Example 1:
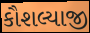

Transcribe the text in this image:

કૌશલ્યાજી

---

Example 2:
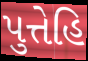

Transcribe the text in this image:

પુત્તેહિ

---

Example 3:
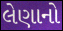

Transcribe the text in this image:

લેણાનો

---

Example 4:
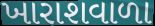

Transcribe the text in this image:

ખારાશવાળા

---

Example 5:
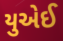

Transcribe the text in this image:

યુએઈ